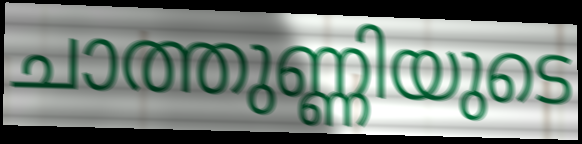
ചാത്തുണ്ണിയുടെ